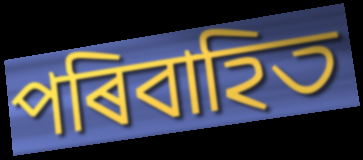
পৰিবাহিত